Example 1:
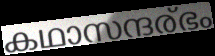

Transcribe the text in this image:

കഥാസന്ദര്ഭം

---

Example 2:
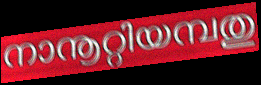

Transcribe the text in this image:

നാനൂറ്റിയമ്പതു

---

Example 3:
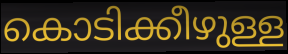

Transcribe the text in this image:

കൊടിക്കീഴുള്ള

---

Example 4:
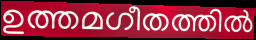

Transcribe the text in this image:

ഉത്തമഗീതത്തിൽ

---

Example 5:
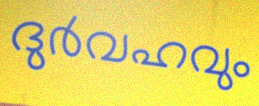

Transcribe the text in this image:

ദുർവഹവും